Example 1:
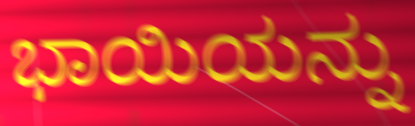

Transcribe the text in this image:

ಭಾಯಿಯನ್ನು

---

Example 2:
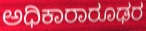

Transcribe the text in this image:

ಅಧಿಕಾರಾರೂಢರ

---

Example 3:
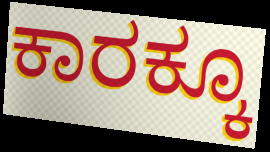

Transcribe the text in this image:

ಕಾರಕ್ಕೂ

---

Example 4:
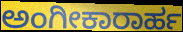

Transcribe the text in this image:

ಅಂಗೀಕಾರಾರ್ಹ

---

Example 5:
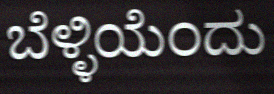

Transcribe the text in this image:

ಬೆಳ್ಳಿಯೆಂದು